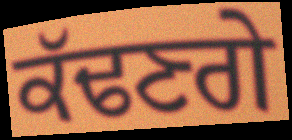
ਕੱਢਣਗੇ